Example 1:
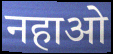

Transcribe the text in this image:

नहाओ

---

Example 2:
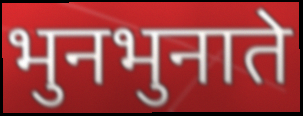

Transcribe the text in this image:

भुनभुनाते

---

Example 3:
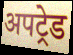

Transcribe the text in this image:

अपट्रेड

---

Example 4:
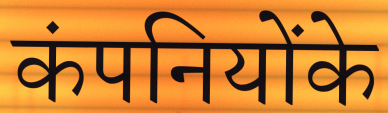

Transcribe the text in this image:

कंपनियोंके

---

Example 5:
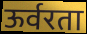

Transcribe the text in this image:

ऊर्वरता